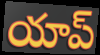
యాప్